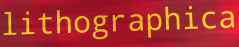
lithographica